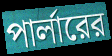
পার্লারের